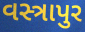
વસ્ત્રાપુર